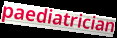
paediatrician